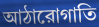
আঠারোগাতি